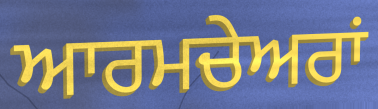
ਆਰਮਚੇਅਰਾਂ